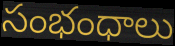
సంభంధాలు